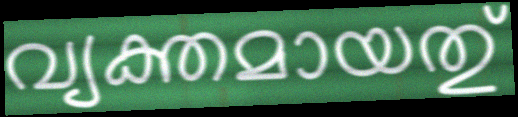
വ്യക്തമായതു്